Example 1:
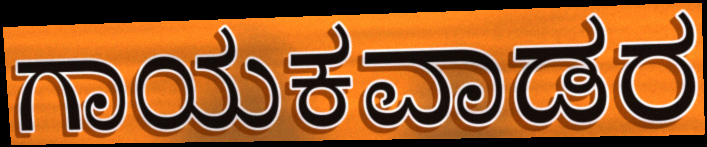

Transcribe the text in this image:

ಗಾಯಕವಾಡರ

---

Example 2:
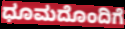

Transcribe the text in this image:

ಧೂಮದೊಂದಿಗೆ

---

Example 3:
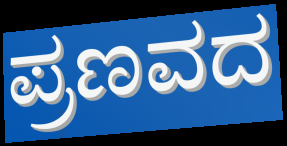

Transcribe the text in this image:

ಪ್ರಣವದ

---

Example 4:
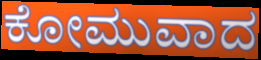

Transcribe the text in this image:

ಕೋಮುವಾದ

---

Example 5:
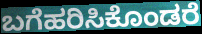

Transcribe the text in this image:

ಬಗೆಹರಿಸಿಕೊಂಡರೆ